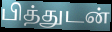
பித்துடன்